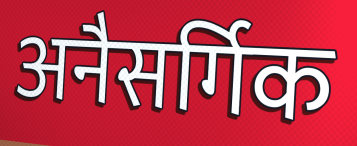
अनैसर्गिक